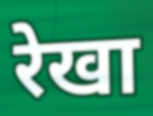
रेखा